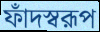
ফাঁদস্বরূপ